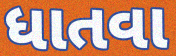
ધાતવા